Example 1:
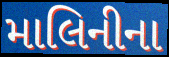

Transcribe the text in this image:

માલિનીના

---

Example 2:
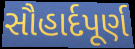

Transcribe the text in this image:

સૌહાર્દપૂર્ણ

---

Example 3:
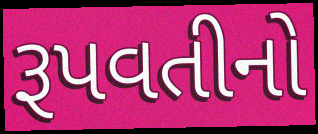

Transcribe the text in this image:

રૂપવતીનો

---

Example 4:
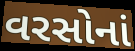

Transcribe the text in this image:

વરસોનાં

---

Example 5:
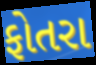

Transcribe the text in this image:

ફોતરા